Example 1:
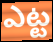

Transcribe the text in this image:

ఎట్ట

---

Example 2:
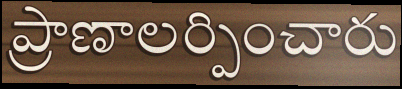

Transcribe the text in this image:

ప్రాణాలర్పించారు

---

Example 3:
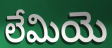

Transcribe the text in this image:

లేమియె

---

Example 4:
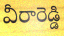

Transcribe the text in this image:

వీరారెడ్డి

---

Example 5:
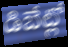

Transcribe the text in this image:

డిబేట్లో